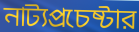
নাট্যপ্রচেষ্টার